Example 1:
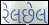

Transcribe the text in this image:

રેલછેલ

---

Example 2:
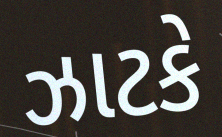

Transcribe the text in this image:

ઝાટકે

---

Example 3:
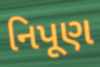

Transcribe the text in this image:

નિપૂણ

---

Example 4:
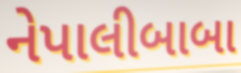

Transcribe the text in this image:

નેપાલીબાબા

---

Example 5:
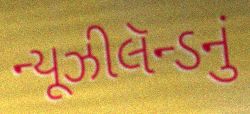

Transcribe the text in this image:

ન્યૂઝીલૅન્ડનું